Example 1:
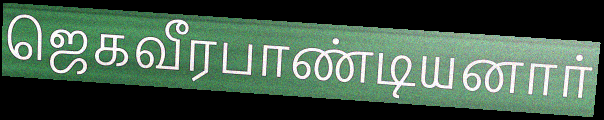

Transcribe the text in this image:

ஜெகவீரபாண்டியனார்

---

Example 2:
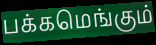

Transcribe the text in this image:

பக்கமெங்கும்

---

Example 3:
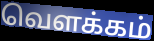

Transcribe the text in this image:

வெளக்கம்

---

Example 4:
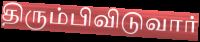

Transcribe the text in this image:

திரும்பிவிடுவார்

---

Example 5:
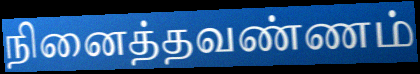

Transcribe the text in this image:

நினைத்தவண்ணம்